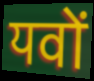
यवों